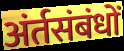
अंर्तसंबंधों